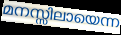
മനസ്സിലായെന്ന